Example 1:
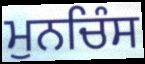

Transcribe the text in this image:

ਮੁਨਚਿੰਸ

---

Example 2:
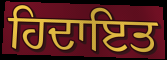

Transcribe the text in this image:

ਹਿਦਾਇਤ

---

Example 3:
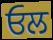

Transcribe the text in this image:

ਓਲ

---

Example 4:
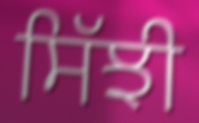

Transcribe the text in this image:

ਸਿੱਝੀ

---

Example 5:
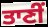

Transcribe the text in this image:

ਤਾਣੀਂ